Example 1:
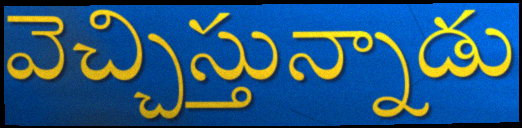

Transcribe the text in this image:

వెచ్చిస్తున్నాడు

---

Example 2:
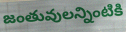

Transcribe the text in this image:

జంతువులన్నింటికి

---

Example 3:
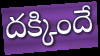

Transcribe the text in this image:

దక్కిందే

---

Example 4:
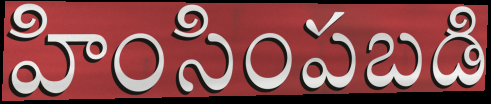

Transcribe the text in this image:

హింసింపబడి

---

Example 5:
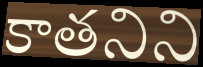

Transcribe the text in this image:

కాతనిని